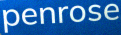
penrose